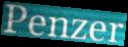
Penzer